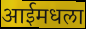
आईमधला